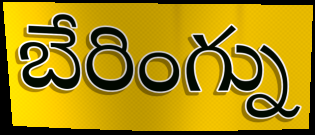
బేరింగ్ను